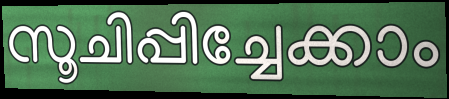
സൂചിപ്പിച്ചേക്കാം